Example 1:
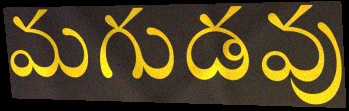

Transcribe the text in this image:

మగుడవు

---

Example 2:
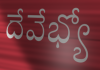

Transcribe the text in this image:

దేవేభ్యో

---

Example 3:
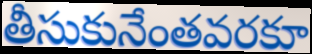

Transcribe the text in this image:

తీసుకునేంతవరకూ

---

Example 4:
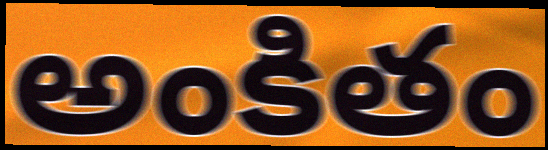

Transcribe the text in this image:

అంకితం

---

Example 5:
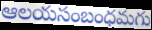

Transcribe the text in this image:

ఆలయసంబంధమగు